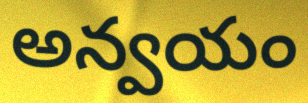
అన్వయం